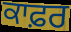
ਕਾਫ਼ਰ